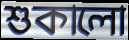
শুকালো